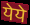
येये